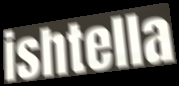
ishtella